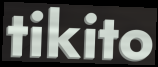
tikito